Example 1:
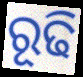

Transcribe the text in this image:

ରୂଢି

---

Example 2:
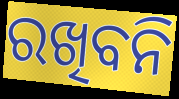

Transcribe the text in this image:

ରଖିବନି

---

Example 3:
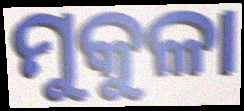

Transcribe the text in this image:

ମୁକୁଳା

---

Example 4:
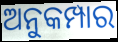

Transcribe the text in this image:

ଅନୁକମ୍ପାର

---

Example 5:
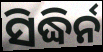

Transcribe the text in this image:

ସିଦ୍ଧିର୍ନ